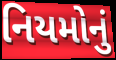
નિયમોનું